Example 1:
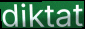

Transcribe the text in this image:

diktat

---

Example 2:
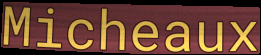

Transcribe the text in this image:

Micheaux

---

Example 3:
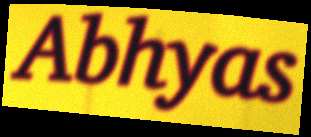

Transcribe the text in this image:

Abhyas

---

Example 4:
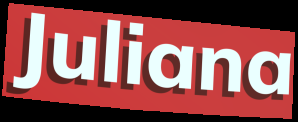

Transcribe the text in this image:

Juliana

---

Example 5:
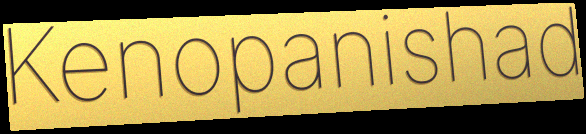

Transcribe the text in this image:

Kenopanishad